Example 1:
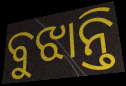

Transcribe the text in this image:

ବୁଝାନ୍ତି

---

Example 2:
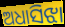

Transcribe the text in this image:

ଅଧାସିଝା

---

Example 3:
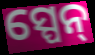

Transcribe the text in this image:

ସ୍ପେନ୍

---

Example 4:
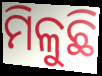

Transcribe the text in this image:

ମିଳୁଛି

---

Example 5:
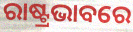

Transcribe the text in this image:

ରାଷ୍ଟ୍ରଭାବରେ